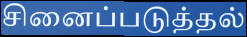
சினைப்படுத்தல்